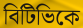
বিটিভিকে